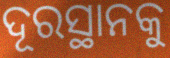
ଦୂରସ୍ଥାନକୁ